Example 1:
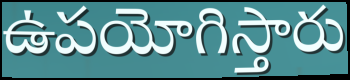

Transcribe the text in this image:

ఉపయోగిస్తారు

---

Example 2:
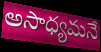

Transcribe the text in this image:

అసాధ్యమనే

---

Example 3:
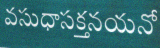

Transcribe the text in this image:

వసుధాసక్తనయనో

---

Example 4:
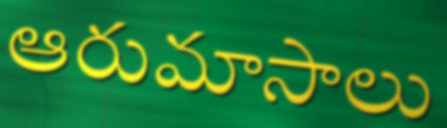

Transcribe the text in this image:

ఆరుమాసాలు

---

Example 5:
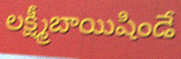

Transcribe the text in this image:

లక్ష్మీబాయిషిండే